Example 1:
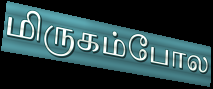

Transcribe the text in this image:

மிருகம்போல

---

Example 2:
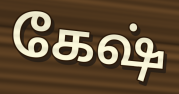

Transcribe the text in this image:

கேஷ்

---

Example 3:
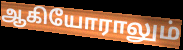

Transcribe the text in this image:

ஆகியோராலும்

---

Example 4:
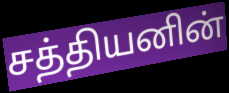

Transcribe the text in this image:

சத்தியனின்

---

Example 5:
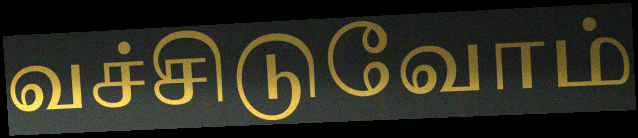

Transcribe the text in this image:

வச்சிடுவோம்